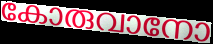
കോരുവാനോ